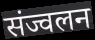
संज्वलन